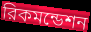
রিকমন্ডেশন